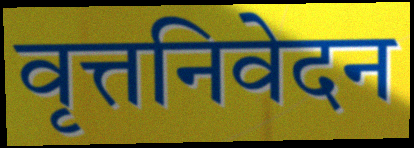
वृत्तनिवेदन